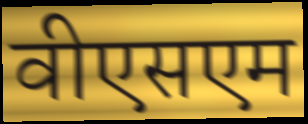
वीएसएम